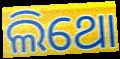
ଲିଥୋ